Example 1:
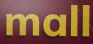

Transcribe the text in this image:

mall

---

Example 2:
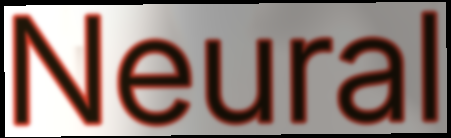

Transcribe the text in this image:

Neural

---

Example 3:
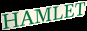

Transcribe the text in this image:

HAMLET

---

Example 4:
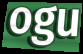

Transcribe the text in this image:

ogu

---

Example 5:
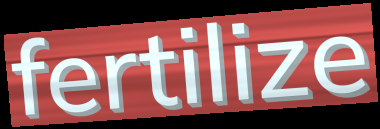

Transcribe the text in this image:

fertilize